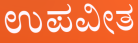
ಉಪವೀತ